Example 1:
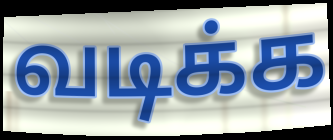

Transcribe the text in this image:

வடிக்க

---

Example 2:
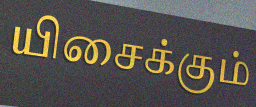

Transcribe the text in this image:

யிசைக்கும்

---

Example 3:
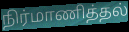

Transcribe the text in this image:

நிர்மாணித்தல்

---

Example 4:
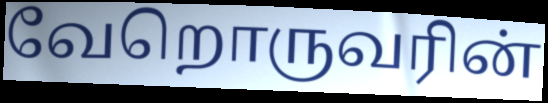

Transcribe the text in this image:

வேறொருவரின்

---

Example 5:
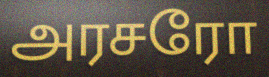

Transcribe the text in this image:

அரசரோ